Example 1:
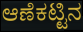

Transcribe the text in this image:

ಆಣೆಕಟ್ಟಿನ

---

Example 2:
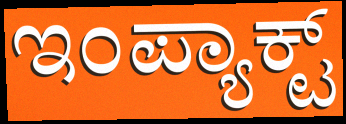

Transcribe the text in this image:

ಇಂಪ್ಯಾಕ್ಟ್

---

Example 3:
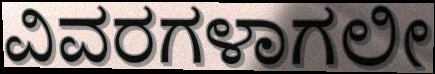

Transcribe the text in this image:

ವಿವರಗಳಾಗಲೀ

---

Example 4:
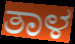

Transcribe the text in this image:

ತಾಳ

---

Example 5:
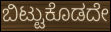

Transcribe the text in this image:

ಬಿಟ್ಟುಕೊಡದೇ